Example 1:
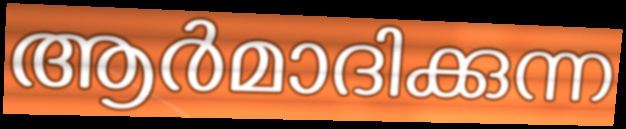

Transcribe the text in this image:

ആർമാദിക്കുന്ന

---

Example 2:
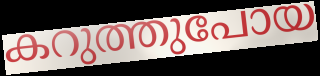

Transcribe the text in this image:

കറുത്തുപോയ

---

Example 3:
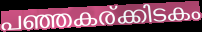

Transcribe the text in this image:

പഞ്ഞകര്ക്കിടകം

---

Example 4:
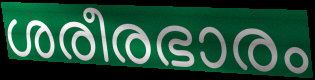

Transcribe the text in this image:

ശരീരഭാരം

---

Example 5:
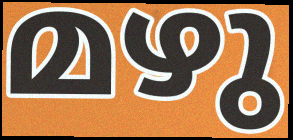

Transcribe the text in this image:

മഴു